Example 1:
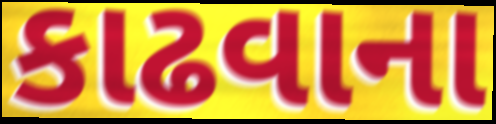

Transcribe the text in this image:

કાઢવાના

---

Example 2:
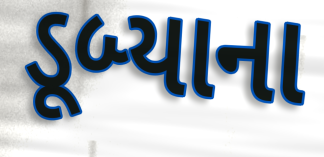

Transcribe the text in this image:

ડૂબ્યાના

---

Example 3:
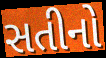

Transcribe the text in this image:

સતીનો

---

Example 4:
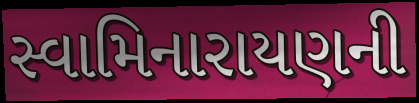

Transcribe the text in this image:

સ્વામિનારાયણની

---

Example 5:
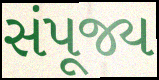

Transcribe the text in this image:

સંપૂજ્ય